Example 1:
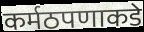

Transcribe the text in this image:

कर्मठपणाकडे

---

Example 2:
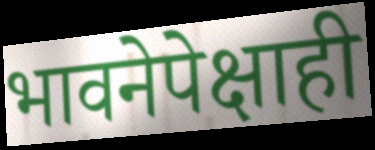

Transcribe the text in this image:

भावनेपेक्षाही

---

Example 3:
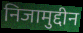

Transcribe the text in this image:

निजामुद्दीन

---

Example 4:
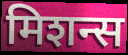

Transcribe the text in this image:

मिशन्स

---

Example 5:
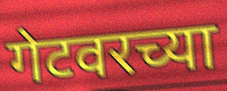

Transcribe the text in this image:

गेटवरच्या